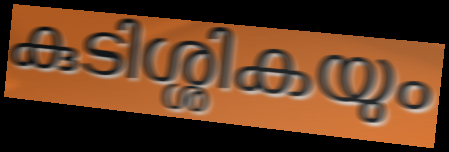
കുടിശ്ശികയും